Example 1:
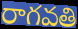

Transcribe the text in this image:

రాగవతి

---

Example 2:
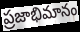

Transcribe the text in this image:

ప్రజాభిమానం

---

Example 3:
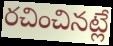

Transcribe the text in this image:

రచించినట్లే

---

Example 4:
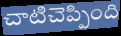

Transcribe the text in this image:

చాటిచెప్పింది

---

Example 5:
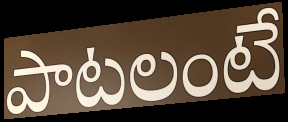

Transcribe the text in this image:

పాటలంటే